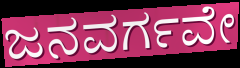
ಜನವರ್ಗವೇ